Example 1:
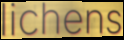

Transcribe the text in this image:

lichens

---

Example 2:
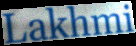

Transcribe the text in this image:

Lakhmi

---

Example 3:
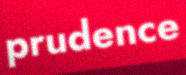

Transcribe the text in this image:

prudence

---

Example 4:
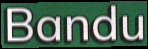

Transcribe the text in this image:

Bandu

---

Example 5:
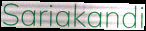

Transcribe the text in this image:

Sariakandi